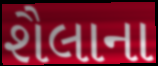
શૈલાના